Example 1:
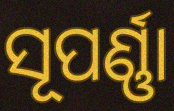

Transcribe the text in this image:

ସୂପର୍ଣ୍ଣା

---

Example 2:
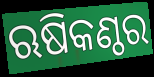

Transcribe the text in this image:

ଋଷିକଣ୍ଠର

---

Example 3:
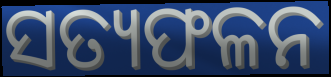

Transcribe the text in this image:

ସତ୍ୟଫଳନ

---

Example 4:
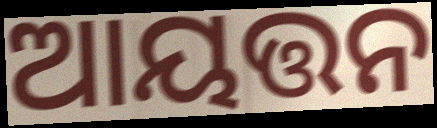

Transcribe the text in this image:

ଆୟତ୍ତନ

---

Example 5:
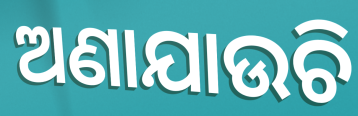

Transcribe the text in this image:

ଅଣାଯାଉଚି